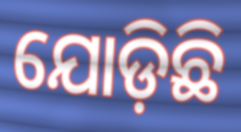
ଯୋଡ଼ିଛି